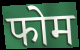
फोम